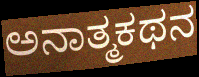
ಅನಾತ್ಮಕಥನ